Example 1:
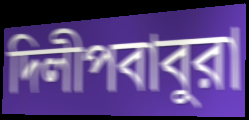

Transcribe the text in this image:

দিলীপবাবুরা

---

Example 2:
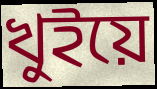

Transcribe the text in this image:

খুইয়ে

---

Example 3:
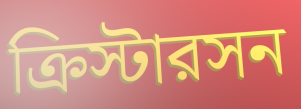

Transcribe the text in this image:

ক্রিস্টারসন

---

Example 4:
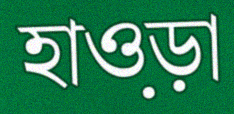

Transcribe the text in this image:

হাও়ড়া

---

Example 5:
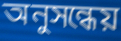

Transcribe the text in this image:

অনুসন্ধেয়